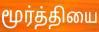
மூர்த்தியை